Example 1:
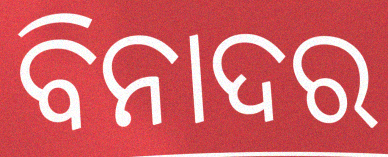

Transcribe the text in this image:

ବିନାଦର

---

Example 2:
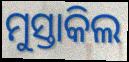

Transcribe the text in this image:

ମୁସ୍ତାକିଲ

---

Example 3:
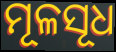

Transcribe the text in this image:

ମୂଳସୂଧ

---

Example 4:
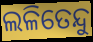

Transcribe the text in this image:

ଲଳିତେନ୍ଦୁ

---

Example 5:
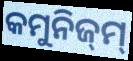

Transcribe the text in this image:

କମୁନିଜ୍‌ମ୍